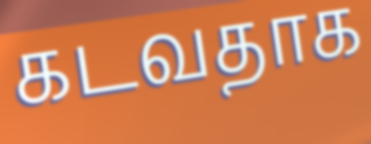
கடவதாக